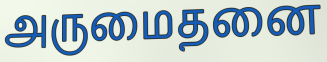
அருமைதனை